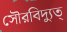
সৌরবিদ্যুত্